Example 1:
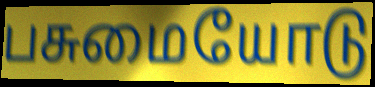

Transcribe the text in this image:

பசுமையோடு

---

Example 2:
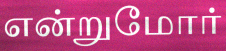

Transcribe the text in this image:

என்றுமோர்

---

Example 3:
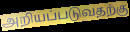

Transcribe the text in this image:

அறியப்படுவதற்கு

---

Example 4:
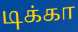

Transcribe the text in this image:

டிக்கா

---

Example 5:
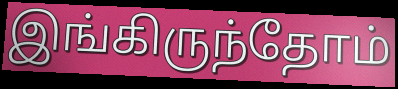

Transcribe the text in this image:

இங்கிருந்தோம்